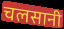
चलसानी